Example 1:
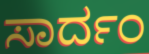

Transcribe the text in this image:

ಸಾರ್ದಂ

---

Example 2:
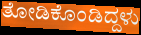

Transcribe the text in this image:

ತೋಡಿಕೊಂಡಿದ್ದಳು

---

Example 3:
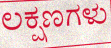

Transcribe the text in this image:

ಲಕ್ಷಣಗಳು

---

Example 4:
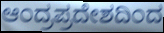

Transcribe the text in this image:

ಆಂದ್ರಪ್ರದೇಶದಿಂದ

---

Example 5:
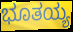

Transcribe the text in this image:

ಭೂತಯ್ಯ